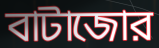
বাটাজোর